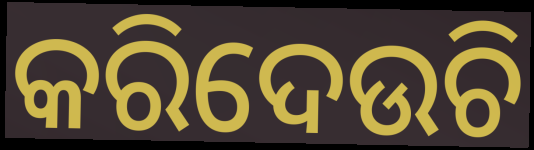
କରିଦେଉଚି